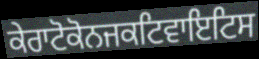
ਕੇਰਾਟੋਕੋਨਜਕਟਿਵਾਇਟਿਸ